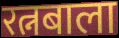
रत्नबाला